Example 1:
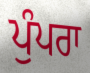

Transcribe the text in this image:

ਪੁੰਪਰਾ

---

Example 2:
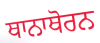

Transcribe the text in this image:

ਥਾਨਾਥੋਰਨ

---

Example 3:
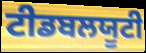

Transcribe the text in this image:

ਟੀਡਬਲਯੂਟੀ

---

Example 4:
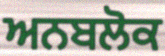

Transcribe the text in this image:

ਅਨਬਲੋਕ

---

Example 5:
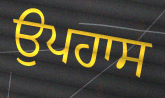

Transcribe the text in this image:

ਉਪਹਾਸ